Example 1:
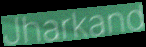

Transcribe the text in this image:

Jharkand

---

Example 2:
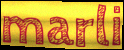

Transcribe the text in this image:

marli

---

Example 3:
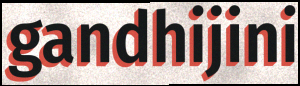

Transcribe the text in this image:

gandhijini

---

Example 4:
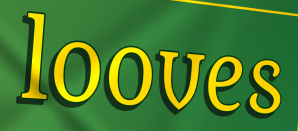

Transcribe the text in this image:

looues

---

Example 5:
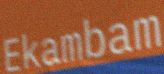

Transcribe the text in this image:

Ekambam